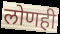
लोणही